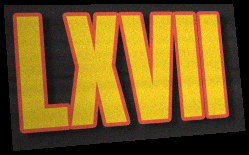
LXVII